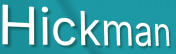
Hickman